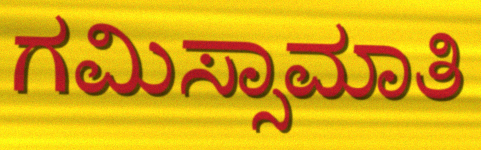
ಗಮಿಸ್ಸಾಮಾತಿ